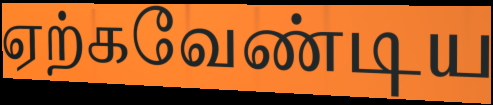
ஏற்கவேண்டிய